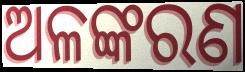
ଅଳଙ୍କରଣ